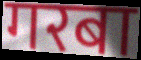
गरबा